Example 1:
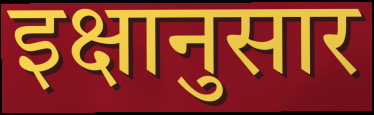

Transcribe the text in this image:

इक्षानुसार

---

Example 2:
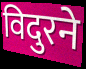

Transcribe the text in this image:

विदुरने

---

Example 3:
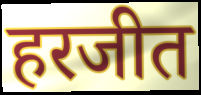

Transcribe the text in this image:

हरजीत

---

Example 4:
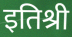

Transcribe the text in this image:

इतिश्री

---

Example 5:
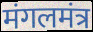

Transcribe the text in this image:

मंगलमंत्र